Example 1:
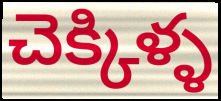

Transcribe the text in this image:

చెక్కిళ్ళ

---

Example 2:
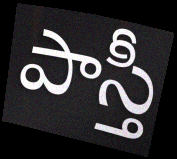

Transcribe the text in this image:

పాస్తీ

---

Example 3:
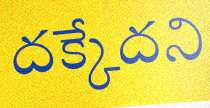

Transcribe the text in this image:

దక్కేదని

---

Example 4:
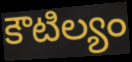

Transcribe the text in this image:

కౌటిల్యం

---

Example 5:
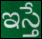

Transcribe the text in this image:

ఇస్తే